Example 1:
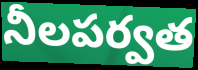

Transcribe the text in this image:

నీలపర్వత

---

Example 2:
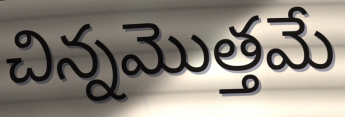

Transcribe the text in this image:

చిన్నమొత్తమే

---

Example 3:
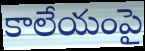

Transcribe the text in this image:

కాలేయంపై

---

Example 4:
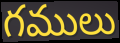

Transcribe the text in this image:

గములు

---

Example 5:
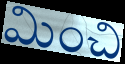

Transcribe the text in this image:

మించి